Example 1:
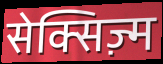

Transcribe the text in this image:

सेक्सिज़्म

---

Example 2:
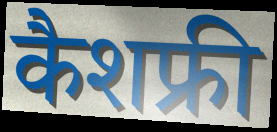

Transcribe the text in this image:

कैशफ्री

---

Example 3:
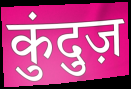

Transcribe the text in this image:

कुंदुज़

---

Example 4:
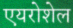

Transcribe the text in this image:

एयरोशेल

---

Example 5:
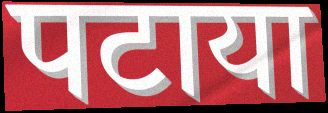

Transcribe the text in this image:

पटाया